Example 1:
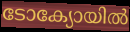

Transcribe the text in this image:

ടോക്യോയിൽ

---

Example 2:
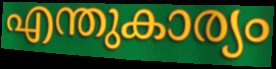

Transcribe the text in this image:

എന്തുകാര്യം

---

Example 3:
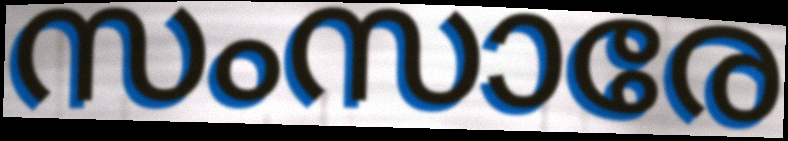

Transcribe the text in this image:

സംസാരേ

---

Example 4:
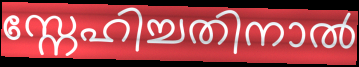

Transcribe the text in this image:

സ്നേഹിച്ചതിനാൽ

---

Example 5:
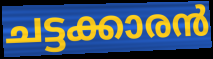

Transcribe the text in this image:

ചട്ടക്കാരൻ